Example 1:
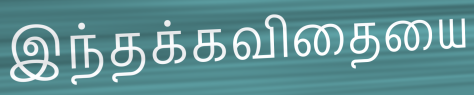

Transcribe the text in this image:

இந்தக்கவிதையை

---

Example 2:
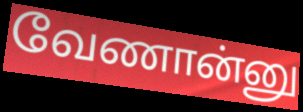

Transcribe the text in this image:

வேணான்னு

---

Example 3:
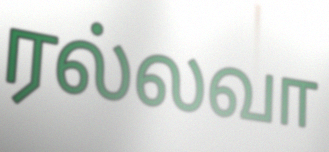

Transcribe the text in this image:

ரல்லவா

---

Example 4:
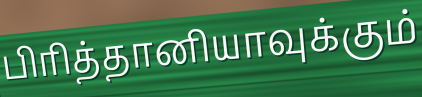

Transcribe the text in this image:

பிரித்தானியாவுக்கும்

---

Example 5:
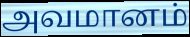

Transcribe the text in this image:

அவமானம்